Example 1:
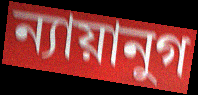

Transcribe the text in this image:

ন্যায়ানুগ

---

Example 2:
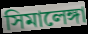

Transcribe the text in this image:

সিমালেঙ্গা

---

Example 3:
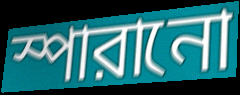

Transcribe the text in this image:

স্পারানো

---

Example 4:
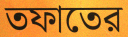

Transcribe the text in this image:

তফাতের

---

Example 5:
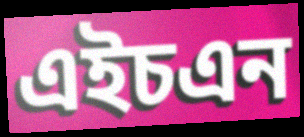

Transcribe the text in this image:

এইচএন